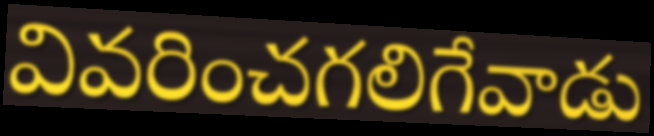
వివరించగలిగేవాడు